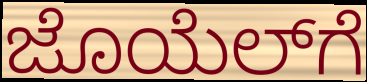
ಜೊಯೆಲ್‌ಗೆ